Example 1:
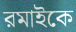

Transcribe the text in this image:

রমাইকে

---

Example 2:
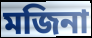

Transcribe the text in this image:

মজিনা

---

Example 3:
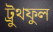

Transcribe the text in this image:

ট্রুথফুল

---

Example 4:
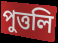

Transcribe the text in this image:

পুত্তলি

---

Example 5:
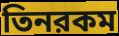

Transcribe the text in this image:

তিনরকম